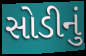
સોડીનું